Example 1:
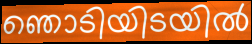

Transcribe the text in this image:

ഞൊടിയിടയിൽ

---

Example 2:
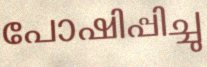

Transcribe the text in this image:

പോഷിപ്പിച്ചു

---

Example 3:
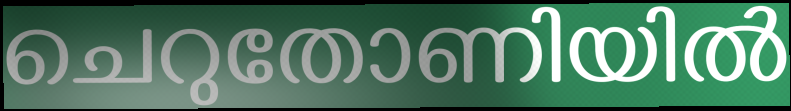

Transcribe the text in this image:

ചെറുതോണിയിൽ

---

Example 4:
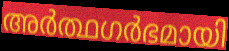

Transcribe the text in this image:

അർത്ഥഗർഭമായി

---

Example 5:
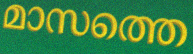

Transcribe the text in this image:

മാസത്തെ